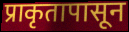
प्राकृतापासून